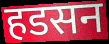
हडसन